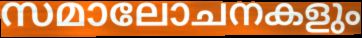
സമാലോചനകളും